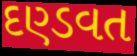
દણ્ડવત